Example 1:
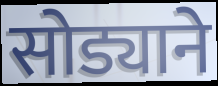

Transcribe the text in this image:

सोड्याने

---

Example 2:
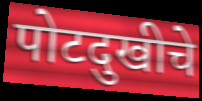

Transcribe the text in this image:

पोटदुखीचे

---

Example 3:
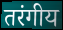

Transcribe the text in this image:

तरंगीय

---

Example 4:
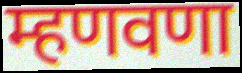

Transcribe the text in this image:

म्हणवणा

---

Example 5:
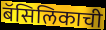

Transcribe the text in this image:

बॅसिलिकाची